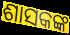
ଶାସକଙ୍କ